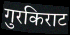
गुरकिराट